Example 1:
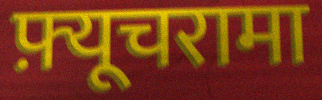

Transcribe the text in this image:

फ़्यूचरामा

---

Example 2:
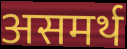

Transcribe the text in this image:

असमर्थ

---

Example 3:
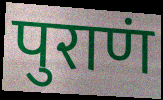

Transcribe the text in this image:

पुराणं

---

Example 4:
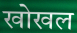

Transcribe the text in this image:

खोखल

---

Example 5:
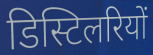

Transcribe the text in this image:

डिस्टिलरियों